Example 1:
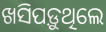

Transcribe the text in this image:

ଖସିପଡ଼ୁଥିଲେ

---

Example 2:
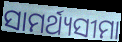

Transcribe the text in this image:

ସାମର୍ଥ୍ୟସୀମା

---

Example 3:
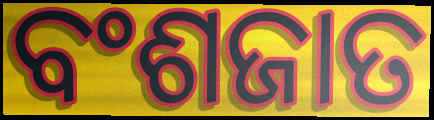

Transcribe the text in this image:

ବଂଶଜାତ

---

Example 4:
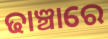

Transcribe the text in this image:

ଢାଞ୍ଚାରେ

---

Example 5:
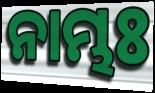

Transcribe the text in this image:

ନାମ୍ଭଃ